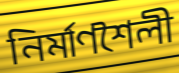
নির্মাণশৈলী